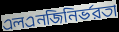
এলএনজিনির্ভরতা